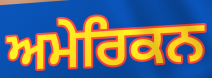
ਅਮੇਰਿਕਨ